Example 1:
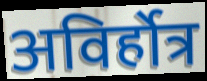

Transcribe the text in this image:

अविर्होत्र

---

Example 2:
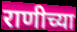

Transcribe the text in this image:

राणीच्या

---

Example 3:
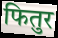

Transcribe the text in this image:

फितुर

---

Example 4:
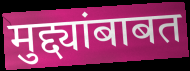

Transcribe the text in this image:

मुद्द्यांबाबत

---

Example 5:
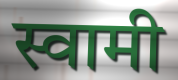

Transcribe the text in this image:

स्वामी